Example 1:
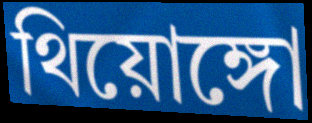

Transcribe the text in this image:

থিয়োঙ্গো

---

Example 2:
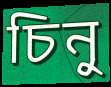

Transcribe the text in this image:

চিনু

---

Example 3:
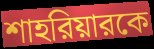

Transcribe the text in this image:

শাহরিয়ারকে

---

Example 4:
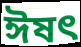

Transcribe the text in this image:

ঈষত্‍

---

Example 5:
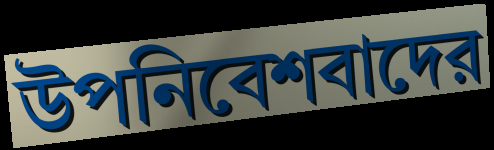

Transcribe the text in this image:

উপনিবেশবাদের